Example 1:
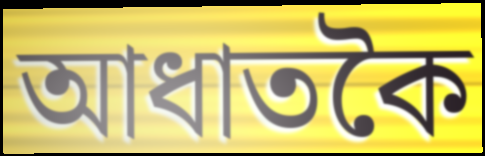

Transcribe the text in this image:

আধাতকৈ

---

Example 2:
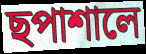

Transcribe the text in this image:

ছপাশালে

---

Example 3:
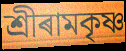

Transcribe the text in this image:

শ্ৰীৰামকৃষ্ণ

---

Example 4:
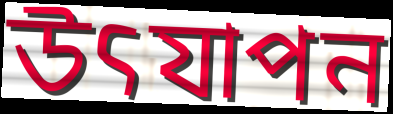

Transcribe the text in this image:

উৎযাপন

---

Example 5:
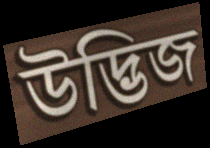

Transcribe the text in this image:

উদ্ভিজ